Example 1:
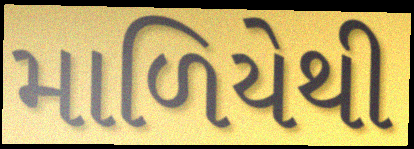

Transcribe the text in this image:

માળિયેથી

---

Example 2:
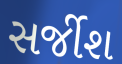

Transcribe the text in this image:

સર્જીશ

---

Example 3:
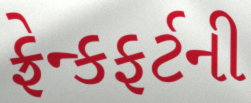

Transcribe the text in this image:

ફ્રેન્કફર્ટની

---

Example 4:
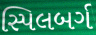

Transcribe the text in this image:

સ્પિલબર્ગ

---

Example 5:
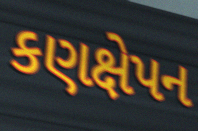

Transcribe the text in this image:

કણક્ષેપન